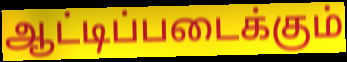
ஆட்டிப்படைக்கும்